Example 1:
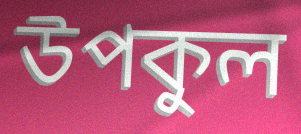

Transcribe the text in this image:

উপকুল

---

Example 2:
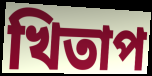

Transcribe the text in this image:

খিতাপ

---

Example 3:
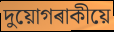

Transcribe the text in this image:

দুয়োগৰাকীয়ে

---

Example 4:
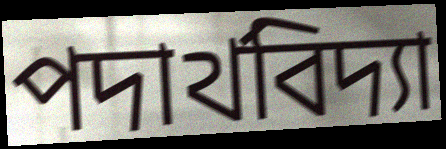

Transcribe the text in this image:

পদাৰ্থবিদ্যা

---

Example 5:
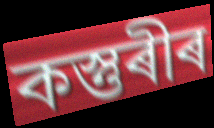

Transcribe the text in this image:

কস্তুৰীৰ